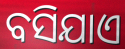
ବସିଯାଏ